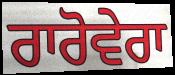
ਰਾਰੋਵੇਰਾ